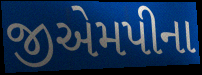
જીએમપીના